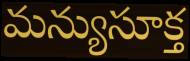
మన్యుసూక్త